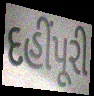
દહીંપૂરી